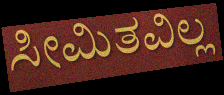
ಸೀಮಿತವಿಲ್ಲ